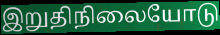
இறுதிநிலையோடு